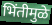
भिंतीमुळे